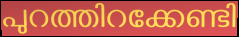
പുറത്തിറക്കേണ്ടി